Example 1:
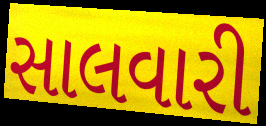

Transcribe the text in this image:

સાલવારી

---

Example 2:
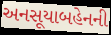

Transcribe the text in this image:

અનસૂયાબહેનની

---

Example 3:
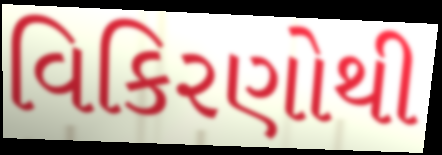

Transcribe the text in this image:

વિકિરણોથી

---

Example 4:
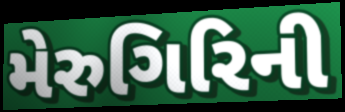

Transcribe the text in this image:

મેરુગિરિની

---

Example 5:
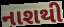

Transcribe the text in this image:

નાશથી